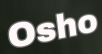
Osho